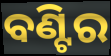
ବଣ୍ଟିର